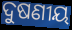
ଦୁଷଣୀୟ